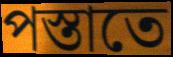
পস্তাতে